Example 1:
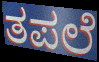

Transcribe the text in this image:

ತಪಲೆ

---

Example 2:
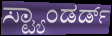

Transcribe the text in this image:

ಸ್ಟ್ಯಾಂಡರ್ಡ್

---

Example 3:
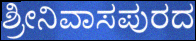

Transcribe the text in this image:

ಶ್ರೀನಿವಾಸಪುರದ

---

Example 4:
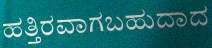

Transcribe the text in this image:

ಹತ್ತಿರವಾಗಬಹುದಾದ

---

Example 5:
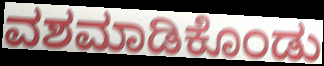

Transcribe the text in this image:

ವಶಮಾಡಿಕೊಂಡು